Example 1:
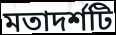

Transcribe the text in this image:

মতাদর্শটি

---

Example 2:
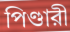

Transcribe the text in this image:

পিণ্ডারী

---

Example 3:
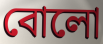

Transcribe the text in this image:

বোলো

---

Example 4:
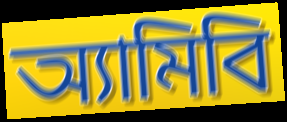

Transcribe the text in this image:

অ্যামিবি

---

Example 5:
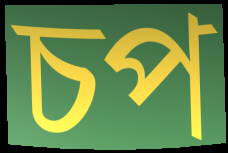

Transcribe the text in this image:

চপ